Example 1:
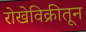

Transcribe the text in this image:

रोखेविक्रीतून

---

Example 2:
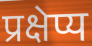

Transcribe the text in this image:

प्रक्षेप्य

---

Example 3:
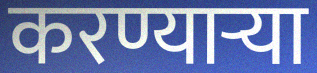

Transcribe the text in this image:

करण्यार्‍या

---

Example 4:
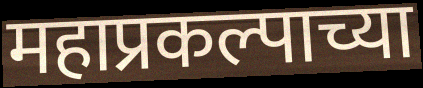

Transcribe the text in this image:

महाप्रकल्पाच्या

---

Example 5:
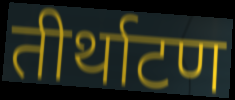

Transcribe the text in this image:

तीर्थाटण